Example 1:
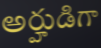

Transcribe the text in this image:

అర్హుడిగా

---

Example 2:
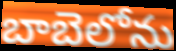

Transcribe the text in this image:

బాబెలోను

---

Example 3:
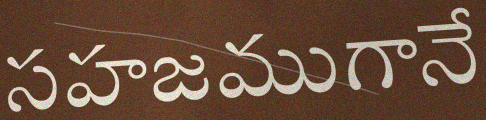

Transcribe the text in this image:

సహజముగానే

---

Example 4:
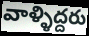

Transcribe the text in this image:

వాళ్ళిద్దరు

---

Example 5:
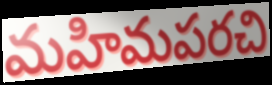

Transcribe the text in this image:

మహిమపరచి